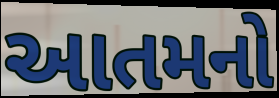
આતમનો